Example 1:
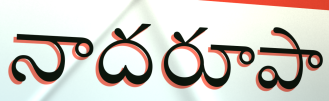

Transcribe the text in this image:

నాదరూపా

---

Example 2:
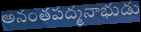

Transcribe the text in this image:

అనంతపద్మనాభుడు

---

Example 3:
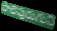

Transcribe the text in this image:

సాలెపురుగుని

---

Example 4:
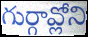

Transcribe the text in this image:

గుర్గావ్లోని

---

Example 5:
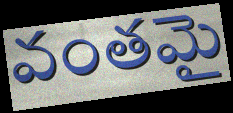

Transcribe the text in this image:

వంతమై